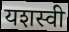
यशस्वी